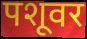
पशूवर